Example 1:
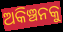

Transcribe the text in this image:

ଅକିଞ୍ଚନକୁ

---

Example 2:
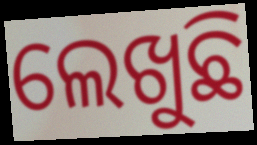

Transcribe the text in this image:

ଲେଖୁଛି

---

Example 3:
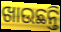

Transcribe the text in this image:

ଖାଉଛନ୍ତି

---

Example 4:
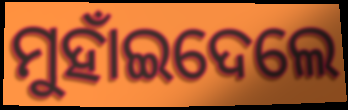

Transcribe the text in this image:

ମୁହାଁଇଦେଲେ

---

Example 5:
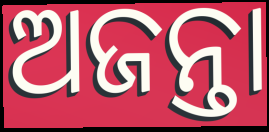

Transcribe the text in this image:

ଅଜନ୍ତା